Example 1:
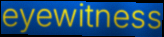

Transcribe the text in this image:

eyewitness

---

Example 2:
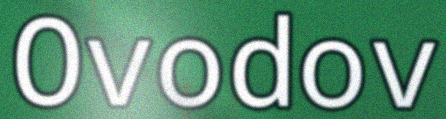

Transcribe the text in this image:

Ovodov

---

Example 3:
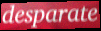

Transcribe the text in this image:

desparate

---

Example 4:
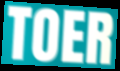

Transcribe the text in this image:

TOER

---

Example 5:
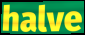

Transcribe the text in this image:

halve